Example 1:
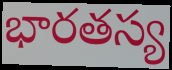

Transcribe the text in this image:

భారతస్య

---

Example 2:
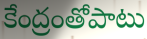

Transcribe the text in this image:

కేంద్రంతోపాటు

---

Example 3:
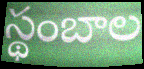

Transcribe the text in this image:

స్థంబాల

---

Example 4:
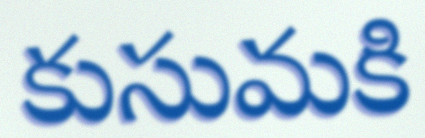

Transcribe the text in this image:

కుసుమకి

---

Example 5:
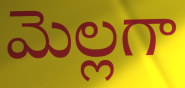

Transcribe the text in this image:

మెల్లగా